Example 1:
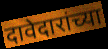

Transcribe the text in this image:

दावेदारांच्या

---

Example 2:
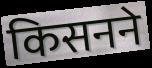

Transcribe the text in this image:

किसनने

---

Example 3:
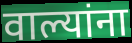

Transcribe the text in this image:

वाल्यांना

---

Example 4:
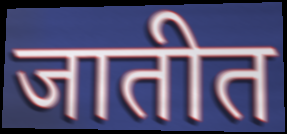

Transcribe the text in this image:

जातीत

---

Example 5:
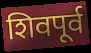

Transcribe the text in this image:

शिवपूर्व